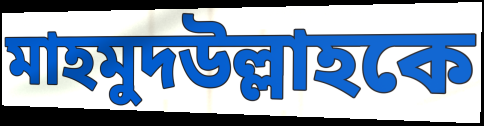
মাহমুদউল্লাহকে